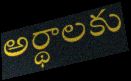
అర్థాలకు